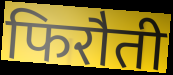
फिरौती